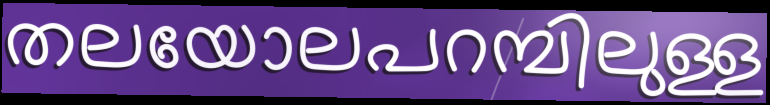
തലയോലപറമ്പിലുള്ള